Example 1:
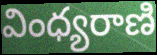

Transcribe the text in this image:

వింధ్యరాణి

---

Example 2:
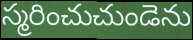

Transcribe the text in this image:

స్మరించుచుండెను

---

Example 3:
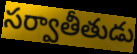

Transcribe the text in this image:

సర్వాతీతుడు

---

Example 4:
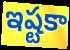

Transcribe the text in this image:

ఇష్టకా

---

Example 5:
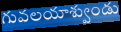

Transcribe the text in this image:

గువలయాశ్వుండు